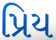
પ્રિય